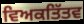
ਵਿਅਕਤਿੱਤਵ